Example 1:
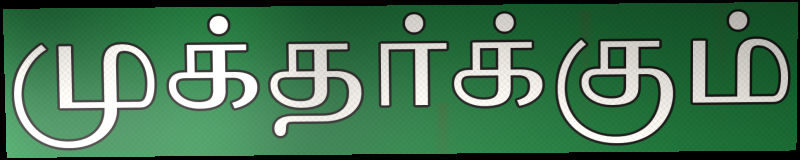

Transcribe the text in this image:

முக்தர்க்கும்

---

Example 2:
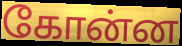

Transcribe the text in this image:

கோன்ன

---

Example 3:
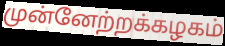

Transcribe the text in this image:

முன்னேற்றக்கழகம்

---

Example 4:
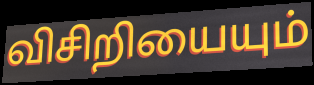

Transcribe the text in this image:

விசிறியையும்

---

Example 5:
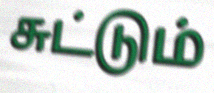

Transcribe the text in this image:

சுட்டும்